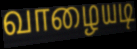
வாழையடி